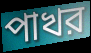
পাখর